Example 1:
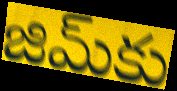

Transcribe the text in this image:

జిమ్‌కు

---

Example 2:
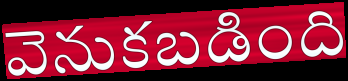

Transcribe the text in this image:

వెనుకబడింది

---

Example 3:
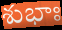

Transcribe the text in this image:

శుభాః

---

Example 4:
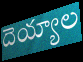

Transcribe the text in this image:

దెయ్యాల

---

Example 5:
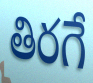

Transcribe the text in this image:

తిరగే